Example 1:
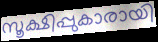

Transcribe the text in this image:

സൂക്ഷിപ്പുകാരായി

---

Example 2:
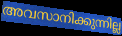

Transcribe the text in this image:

അവസാനിക്കുന്നില്ല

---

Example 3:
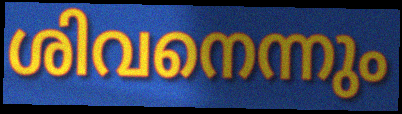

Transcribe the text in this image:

ശിവനെന്നും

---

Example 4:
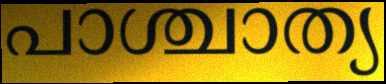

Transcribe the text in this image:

പാശ്ചാത്യ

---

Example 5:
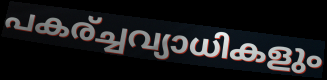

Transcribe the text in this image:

പകര്ച്ചവ്യാധികളും